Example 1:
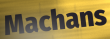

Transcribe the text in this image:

Machans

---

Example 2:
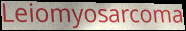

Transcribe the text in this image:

Leiomyosarcoma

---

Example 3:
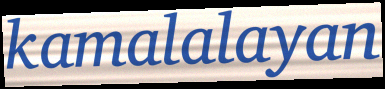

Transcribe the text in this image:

kamalalayan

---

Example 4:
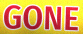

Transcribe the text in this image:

GONE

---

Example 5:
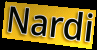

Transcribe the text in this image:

Nardi